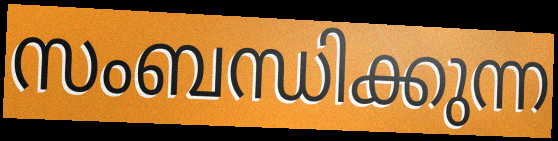
സംബന്ധിക്കുന്ന